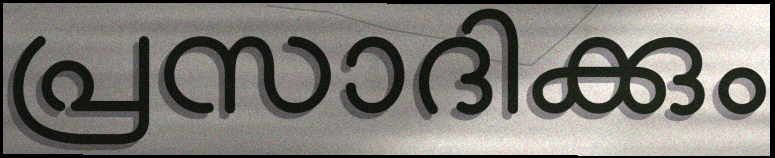
പ്രസാദിക്കും